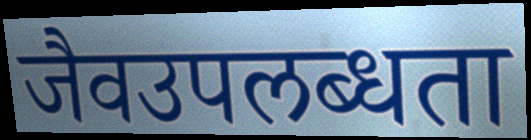
जैवउपलब्धता